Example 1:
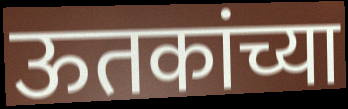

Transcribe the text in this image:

ऊतकांच्या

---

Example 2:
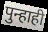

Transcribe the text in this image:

पुन्हाही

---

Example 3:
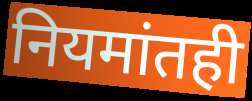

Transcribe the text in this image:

नियमांतही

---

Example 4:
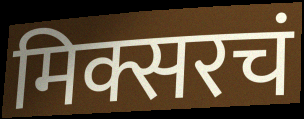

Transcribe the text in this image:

मिक्सरचं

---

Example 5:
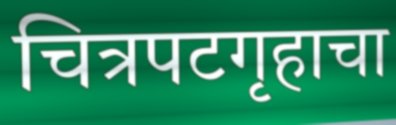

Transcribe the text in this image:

चित्रपटगृहाचा